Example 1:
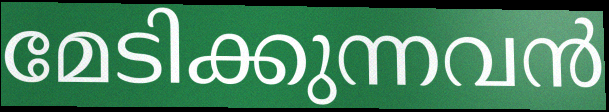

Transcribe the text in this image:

മേടിക്കുന്നവൻ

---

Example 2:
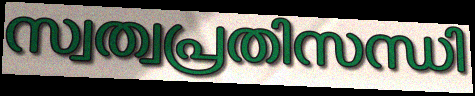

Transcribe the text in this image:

സ്വത്വപ്രതിസന്ധി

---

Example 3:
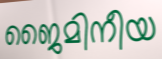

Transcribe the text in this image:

ജൈമിനീയ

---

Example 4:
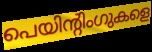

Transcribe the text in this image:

പെയിന്റിംഗുകളെ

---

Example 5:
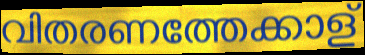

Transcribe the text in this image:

വിതരണത്തേക്കാള്